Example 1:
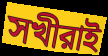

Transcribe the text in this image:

সখীরাই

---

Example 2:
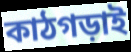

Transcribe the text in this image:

কাঠগড়াই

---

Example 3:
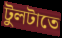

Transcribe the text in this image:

টুলটাতে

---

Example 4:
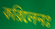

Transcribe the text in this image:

করিলেনঃ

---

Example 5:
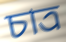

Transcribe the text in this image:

চাত্র